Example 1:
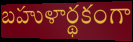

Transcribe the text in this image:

బహుళార్థకంగా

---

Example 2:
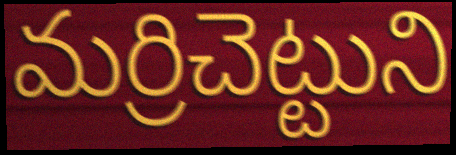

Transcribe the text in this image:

మర్రిచెట్టుని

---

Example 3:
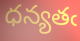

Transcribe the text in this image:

ధన్యతఁ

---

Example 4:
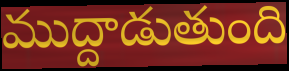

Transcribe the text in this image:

ముద్దాడుతుంది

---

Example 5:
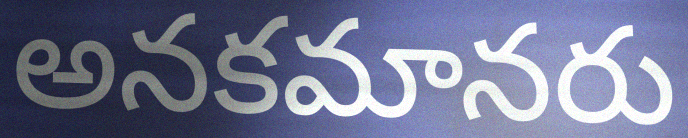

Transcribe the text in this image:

అనకమానరు